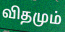
விதமும்